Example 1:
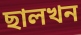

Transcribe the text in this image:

ছালখন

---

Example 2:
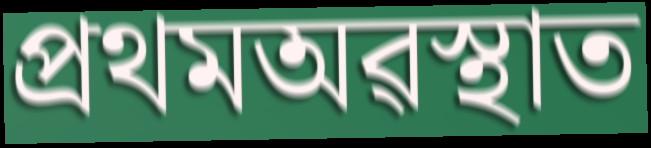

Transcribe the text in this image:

প্ৰথমঅৱস্থাত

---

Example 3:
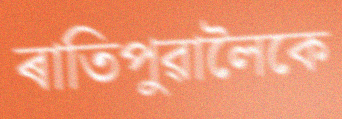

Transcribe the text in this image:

ৰাতিপুৱালৈকে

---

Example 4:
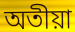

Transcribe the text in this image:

অতীয়া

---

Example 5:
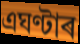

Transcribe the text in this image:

এঘণ্টাৰ